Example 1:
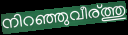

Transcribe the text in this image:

നിറഞ്ഞുവീര്ത്തു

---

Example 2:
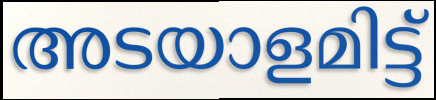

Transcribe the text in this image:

അടയാളമിട്ട്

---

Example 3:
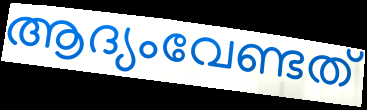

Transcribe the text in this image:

ആദ്യംവേണ്ടത്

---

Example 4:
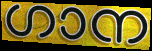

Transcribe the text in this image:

ഗാന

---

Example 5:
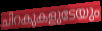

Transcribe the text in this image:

ചിറകുകളുടേയും